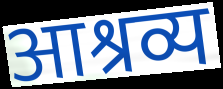
आश्रव्य